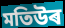
মতিউৰ